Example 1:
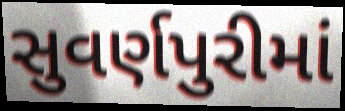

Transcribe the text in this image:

સુવર્ણપુરીમાં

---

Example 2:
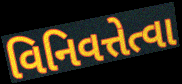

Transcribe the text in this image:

વિનિવત્તેત્વા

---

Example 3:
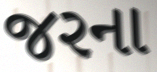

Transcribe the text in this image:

જરના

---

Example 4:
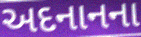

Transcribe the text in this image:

અદનાનના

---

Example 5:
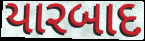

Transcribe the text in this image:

યારબાદ